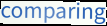
comparing